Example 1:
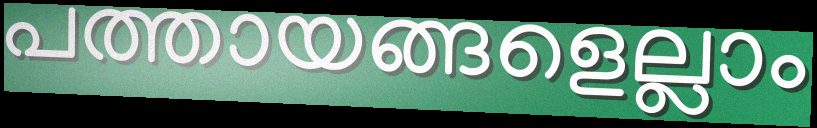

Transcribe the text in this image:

പത്തായങ്ങളെല്ലാം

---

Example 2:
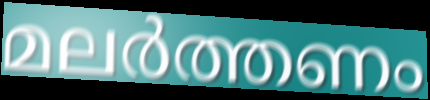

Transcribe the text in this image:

മലർത്തണം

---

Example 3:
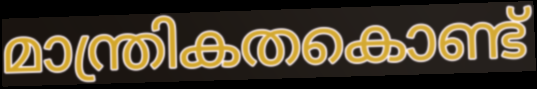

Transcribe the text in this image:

മാന്ത്രികതകൊണ്ട്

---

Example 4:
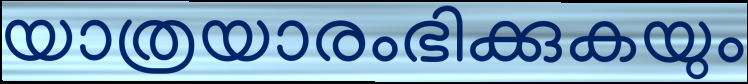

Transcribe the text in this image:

യാത്രയാരംഭിക്കുകയും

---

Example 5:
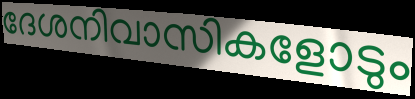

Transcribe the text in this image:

ദേശനിവാസികളോടും